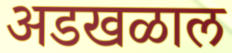
अडखळाल